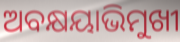
ଅବକ୍ଷୟାଭିମୁଖୀ